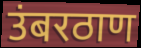
उंबरठाण